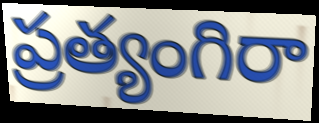
ప్రత్యంగిరా